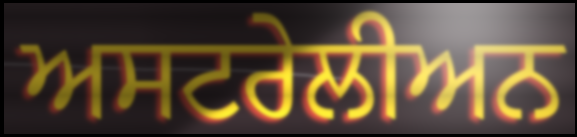
ਅਸਟਰੇਲੀਅਨ